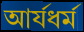
আর্যধর্ম